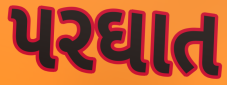
પરઘાત